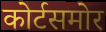
कोर्टसमोर